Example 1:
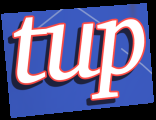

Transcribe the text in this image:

tup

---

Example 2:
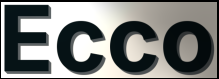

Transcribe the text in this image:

Ecco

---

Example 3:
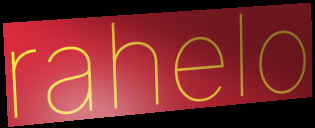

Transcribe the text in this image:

rahelo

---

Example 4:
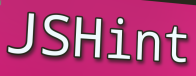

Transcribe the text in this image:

JSHint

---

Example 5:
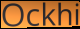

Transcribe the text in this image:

Ockhi